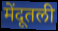
मेंदूतली